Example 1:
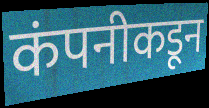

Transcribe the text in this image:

कंपनीकडून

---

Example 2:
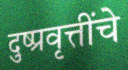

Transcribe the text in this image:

दुष्प्रवृत्तींचे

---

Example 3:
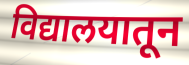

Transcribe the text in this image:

विद्यालयातून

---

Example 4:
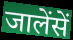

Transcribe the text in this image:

जालेंसें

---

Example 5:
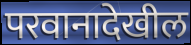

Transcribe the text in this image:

परवानादेखील